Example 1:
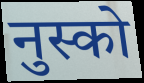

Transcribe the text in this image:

नुस्को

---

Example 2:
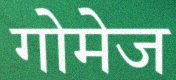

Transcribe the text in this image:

गोमेज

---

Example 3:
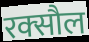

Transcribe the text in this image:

रक्‍सौल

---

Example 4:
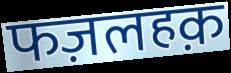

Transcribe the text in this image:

फज़लहक़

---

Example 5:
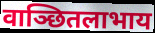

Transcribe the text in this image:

वाञ्छितलाभाय